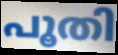
പൂതി